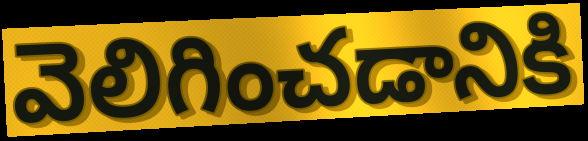
వెలిగించడానికి